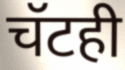
चॅटही